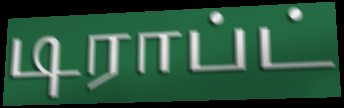
டிராப்ட்